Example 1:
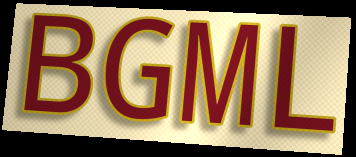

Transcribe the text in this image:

BGML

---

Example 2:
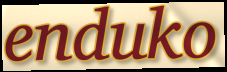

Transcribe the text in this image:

enduko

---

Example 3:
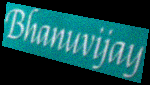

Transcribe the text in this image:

Bhanuvijay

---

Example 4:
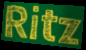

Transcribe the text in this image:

Ritz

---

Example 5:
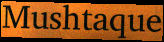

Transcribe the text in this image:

Mushtaque